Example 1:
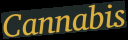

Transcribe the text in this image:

Cannabis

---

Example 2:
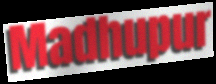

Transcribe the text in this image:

Madhupur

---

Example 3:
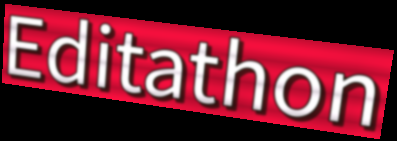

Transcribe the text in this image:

Editathon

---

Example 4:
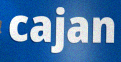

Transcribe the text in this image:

cajan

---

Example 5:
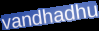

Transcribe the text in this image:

vandhadhu